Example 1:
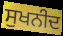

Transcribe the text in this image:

ਸੁਖਨੀਦ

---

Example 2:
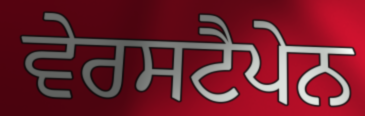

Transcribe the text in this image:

ਵੇਰਸਟੈਪੇਨ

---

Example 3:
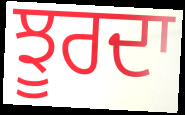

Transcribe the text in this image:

ਝੂਰਦਾ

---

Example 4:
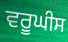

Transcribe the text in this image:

ਵਰੂਘੀਸ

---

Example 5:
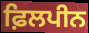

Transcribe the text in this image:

ਫ਼ਿਲਪੀਨ